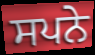
ਸਪਨੇ